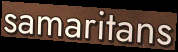
samaritans